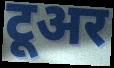
टूअर